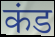
कंड